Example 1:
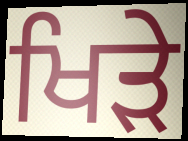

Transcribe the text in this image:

ਖਿੜੇ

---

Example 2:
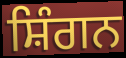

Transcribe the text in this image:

ਸ਼ਿੰਗਨ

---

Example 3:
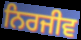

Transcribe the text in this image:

ਨਿਰਜੀਵ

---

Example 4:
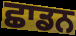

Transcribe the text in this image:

ਛਾਡਨ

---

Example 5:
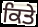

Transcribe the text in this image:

ਕਿਤੇ